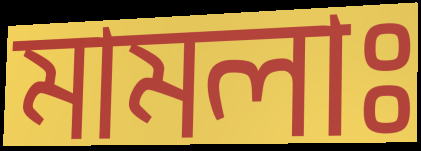
মামলাঃ